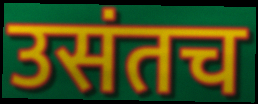
उसंतच